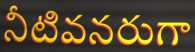
నీటివనరుగా